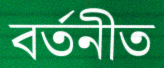
বৰ্তনীত